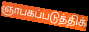
ஞாபகப்படுத்திக்